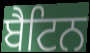
ਬੈਟਿਨ